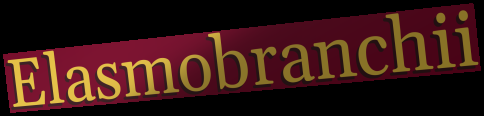
Elasmobranchii